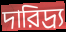
দারিদ্র্য